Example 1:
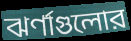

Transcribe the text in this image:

ঝর্ণাগুলোর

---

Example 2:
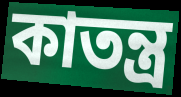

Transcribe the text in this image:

কাতন্ত্র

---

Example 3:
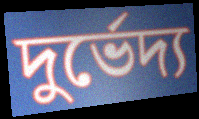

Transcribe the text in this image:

দুর্ভেদ্য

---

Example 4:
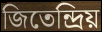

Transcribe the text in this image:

জিতেন্দ্রিয়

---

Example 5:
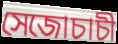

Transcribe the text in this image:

সেজোচাচী